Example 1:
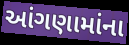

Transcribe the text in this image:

આંગણામાંના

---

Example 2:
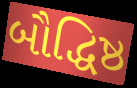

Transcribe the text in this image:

બૌદ્ધિષ્ઠ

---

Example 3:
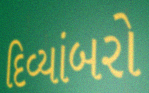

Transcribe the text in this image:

દિવ્યાંબરો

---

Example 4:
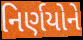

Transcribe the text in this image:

નિર્ણયોને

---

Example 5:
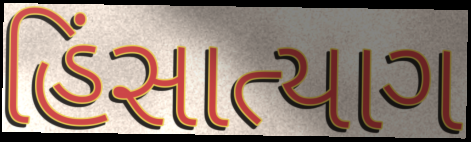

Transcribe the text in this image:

હિંસાત્યાગ